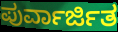
ಪುರ್ವಾರ್ಜಿತ